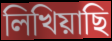
লিখিয়াছি